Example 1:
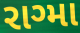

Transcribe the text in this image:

રાગ્મા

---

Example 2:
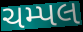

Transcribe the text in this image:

ચમ્પલ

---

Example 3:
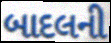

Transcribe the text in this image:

બાદલની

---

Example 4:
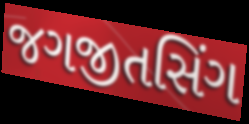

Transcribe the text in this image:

જગજીતસિંગ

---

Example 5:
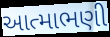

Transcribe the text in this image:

આત્માભણી